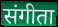
संगीता